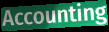
Accounting